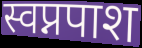
स्वप्नपाश